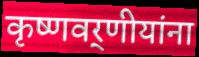
कृष्णवर्णीयांना